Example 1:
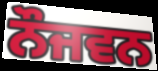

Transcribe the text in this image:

ਨੌਜਵਨ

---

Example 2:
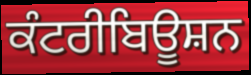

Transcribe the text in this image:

ਕੰਟਰੀਬਿਊਸ਼ਨ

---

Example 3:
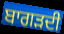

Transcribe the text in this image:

ਬਾਗੜਦੀ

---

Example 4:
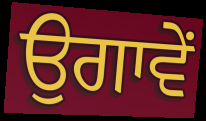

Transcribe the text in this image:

ਉਗਾਵੇਂ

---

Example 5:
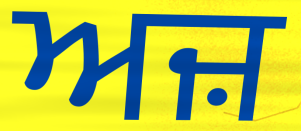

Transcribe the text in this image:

ਅਜ਼